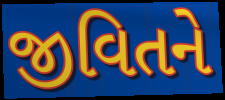
જીવિતને